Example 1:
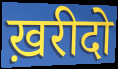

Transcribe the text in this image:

ख़रीदो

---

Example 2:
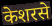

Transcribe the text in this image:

केशरसे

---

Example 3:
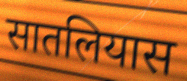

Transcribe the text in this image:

सातलियास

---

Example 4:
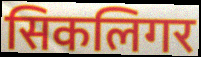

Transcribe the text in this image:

सिकलिगर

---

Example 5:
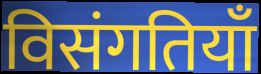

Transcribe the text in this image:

विसंगतियाँ